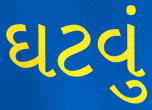
ઘટવું